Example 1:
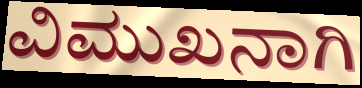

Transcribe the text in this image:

ವಿಮುಖನಾಗಿ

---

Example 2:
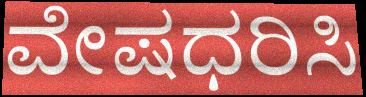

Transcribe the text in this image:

ವೇಷಧರಿಸಿ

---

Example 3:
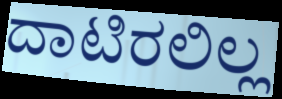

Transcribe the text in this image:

ದಾಟಿರಲಿಲ್ಲ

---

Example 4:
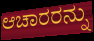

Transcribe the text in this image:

ಆಚಾರರನ್ನು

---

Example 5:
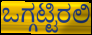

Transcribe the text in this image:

ಒಗ್ಗಟ್ಟಿರಲಿ